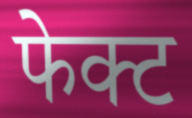
फेक्ट